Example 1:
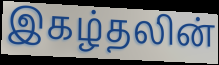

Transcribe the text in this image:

இகழ்தலின்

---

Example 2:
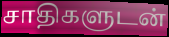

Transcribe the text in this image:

சாதிகளுடன்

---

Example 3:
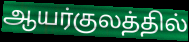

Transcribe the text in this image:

ஆயர்குலத்தில்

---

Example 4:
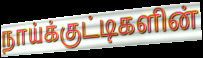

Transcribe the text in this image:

நாய்க்குட்டிகளின்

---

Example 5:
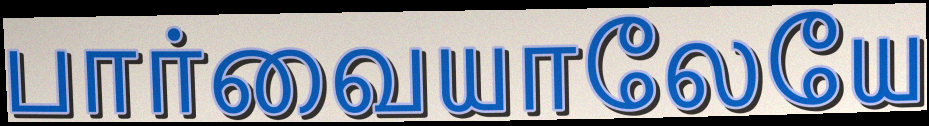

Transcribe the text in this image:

பார்வையாலேயே